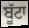
ਬੂੱਟਾ